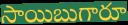
సాయిబుగారూ